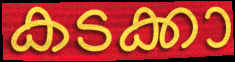
കടക്കാ